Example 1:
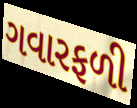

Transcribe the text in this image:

ગવારફળી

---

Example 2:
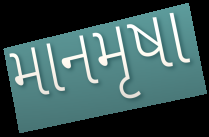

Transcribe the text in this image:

માનમૃષા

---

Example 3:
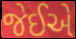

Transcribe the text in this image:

જેઈએ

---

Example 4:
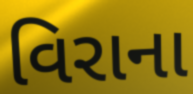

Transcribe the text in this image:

વિરાના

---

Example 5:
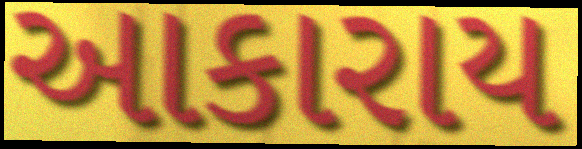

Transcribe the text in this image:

આકારાય